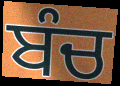
ਬੰਚ